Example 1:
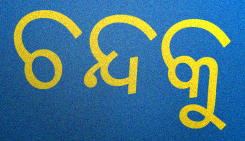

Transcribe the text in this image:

ଚନ୍ଦକୁ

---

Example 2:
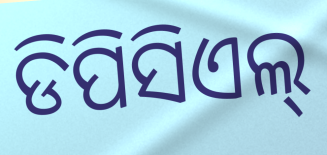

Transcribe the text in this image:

ଡିପିସିଏଲ୍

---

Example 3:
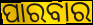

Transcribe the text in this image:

ପାରବାର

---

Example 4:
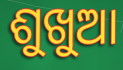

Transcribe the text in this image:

ଶୁଖୁଆ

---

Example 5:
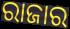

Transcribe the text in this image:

ରାଜାର